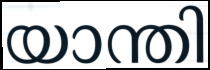
യാന്തി